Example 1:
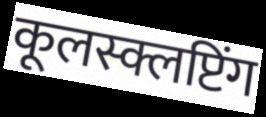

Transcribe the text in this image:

कूलस्क्लप्टिंग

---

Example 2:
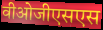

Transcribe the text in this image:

वीओजीएसएस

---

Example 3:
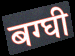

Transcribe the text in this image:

बग्घी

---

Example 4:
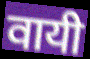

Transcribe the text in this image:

वायी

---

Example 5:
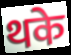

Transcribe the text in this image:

थके